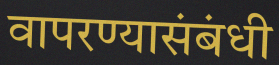
वापरण्यासंबंधी